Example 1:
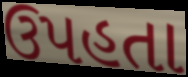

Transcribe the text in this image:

ઉપહતા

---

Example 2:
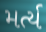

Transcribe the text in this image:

મર્ત્ય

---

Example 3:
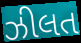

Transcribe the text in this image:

ઝીલત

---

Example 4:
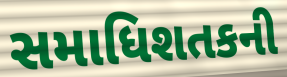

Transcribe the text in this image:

સમાધિશતકની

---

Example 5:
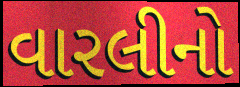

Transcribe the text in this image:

વારલીનો